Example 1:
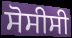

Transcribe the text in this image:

ਸੋਸੀਸੀ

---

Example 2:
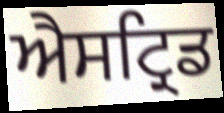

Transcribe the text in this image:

ਐਸਟ੍ਰਿਡ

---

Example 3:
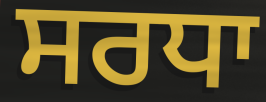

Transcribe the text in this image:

ਸਰਧਾ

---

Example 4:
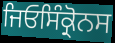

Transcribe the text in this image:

ਜਿਓਸਿੰਕ੍ਰੋਨਸ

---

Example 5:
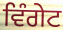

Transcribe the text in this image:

ਵਿੰਗੇਟ